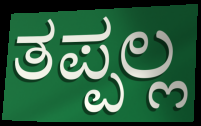
ತಪ್ಪಲ್ಲ